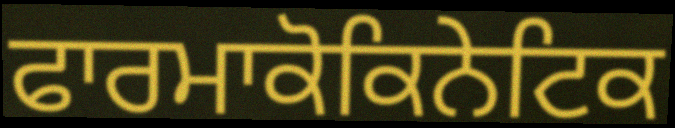
ਫਾਰਮਾਕੋਕਿਨੇਟਿਕ